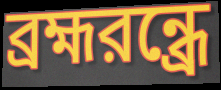
ব্রহ্মরন্ধ্রে